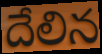
దేలిన